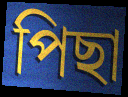
পিছা